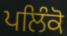
ਪਲਿੰਕੋ